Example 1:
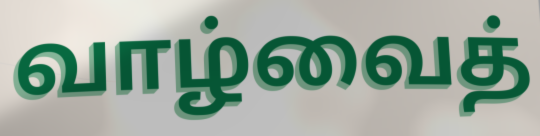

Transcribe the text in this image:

வாழ்வைத்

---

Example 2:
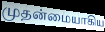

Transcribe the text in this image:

முதன்மையாகிய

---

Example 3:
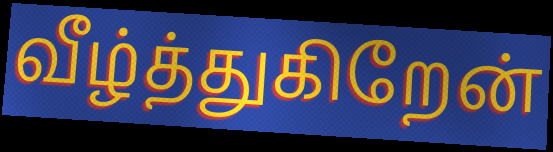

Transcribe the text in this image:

வீழ்த்துகிறேன்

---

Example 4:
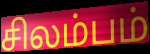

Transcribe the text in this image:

சிலம்பம்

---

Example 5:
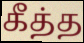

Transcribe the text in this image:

கீத்த